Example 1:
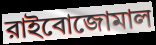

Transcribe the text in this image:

রাইবোজোমাল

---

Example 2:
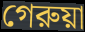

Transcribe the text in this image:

গেরুয়া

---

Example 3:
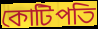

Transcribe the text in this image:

কোটিপতি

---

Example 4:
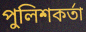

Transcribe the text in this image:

পুলিশকর্তা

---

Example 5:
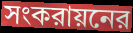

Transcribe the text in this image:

সংকরায়নের